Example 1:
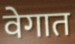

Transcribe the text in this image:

वेगात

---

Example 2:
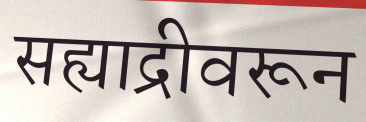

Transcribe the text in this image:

सह्याद्रीवरून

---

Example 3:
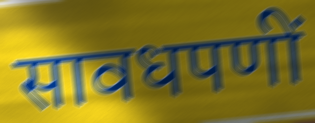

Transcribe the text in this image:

सावधपणीं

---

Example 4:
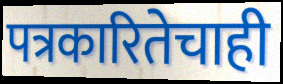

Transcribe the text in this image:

पत्रकारितेचाही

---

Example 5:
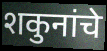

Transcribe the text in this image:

शकुनांचे